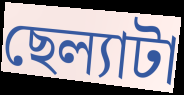
ছেল্যাটা